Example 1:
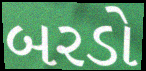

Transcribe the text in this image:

બરડો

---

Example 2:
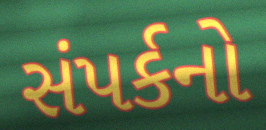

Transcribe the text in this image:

સંપર્કનો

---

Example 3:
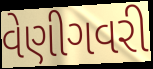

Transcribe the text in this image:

વેણીગવરી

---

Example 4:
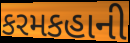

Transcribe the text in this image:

કરમકહાની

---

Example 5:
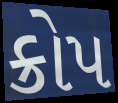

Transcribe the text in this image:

ક્રોપ